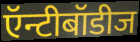
ऍन्टीबॉडीज